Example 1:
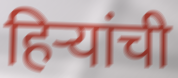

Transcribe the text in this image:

हिऱ्यांची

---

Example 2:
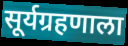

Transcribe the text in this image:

सूर्यग्रहणाला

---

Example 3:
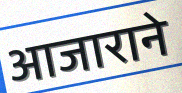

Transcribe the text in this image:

आजाराने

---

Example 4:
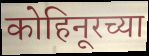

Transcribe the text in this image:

कोहिनूरच्या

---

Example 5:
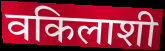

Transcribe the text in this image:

वकिलाशी